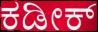
ಕಡೀಕ್